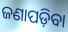
ଜଣାପଡ଼ିବା